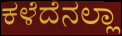
ಕಳೆದೆನಲ್ಲಾ